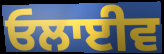
ਓਲਾਈਵ